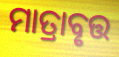
ମାତ୍ରାବୃତ୍ତ